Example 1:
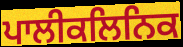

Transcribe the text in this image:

ਪਾਲੀਕਲਿਨਿਕ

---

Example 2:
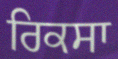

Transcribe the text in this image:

ਰਿਕਸਾ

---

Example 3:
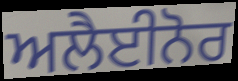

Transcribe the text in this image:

ਅਲੈਈਨੋਰ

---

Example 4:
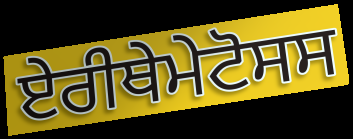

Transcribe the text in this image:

ਏਰੀਥੇਮੇਟੋਸਸ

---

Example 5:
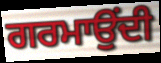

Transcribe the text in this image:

ਗਰਮਾਉਂਦੀ